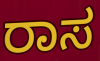
ರಾಸ